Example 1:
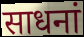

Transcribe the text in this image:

साधनां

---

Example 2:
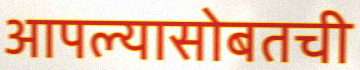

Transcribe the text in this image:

आपल्यासोबतची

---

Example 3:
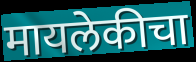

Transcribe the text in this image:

मायलेकीचा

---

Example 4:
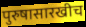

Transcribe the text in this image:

पुरुषासारखीच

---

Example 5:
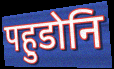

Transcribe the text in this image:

पहुडोनि